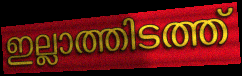
ഇല്ലാത്തിടത്ത്